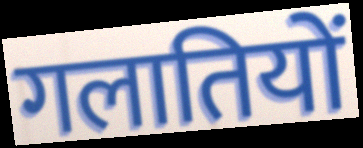
गलातियों